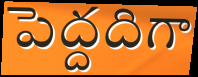
పెద్దదిగా